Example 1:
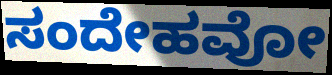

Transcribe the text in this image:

ಸಂದೇಹವೋ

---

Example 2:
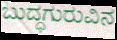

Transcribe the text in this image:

ಬುದ್ಧಗುರುವಿನ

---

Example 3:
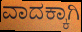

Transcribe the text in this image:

ವಾದಕ್ಕಾಗಿ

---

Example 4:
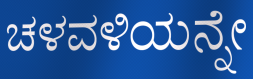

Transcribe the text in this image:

ಚಳವಳಿಯನ್ನೇ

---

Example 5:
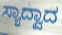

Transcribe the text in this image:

ಸ್ಯಾದ್ವಾದ